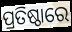
ପ୍ରତିଷ୍ଠାରେ